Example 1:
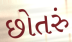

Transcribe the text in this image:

છોતરું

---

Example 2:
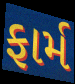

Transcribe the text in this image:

ફાર્મ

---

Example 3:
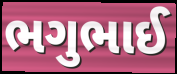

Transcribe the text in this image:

ભગુભાઈ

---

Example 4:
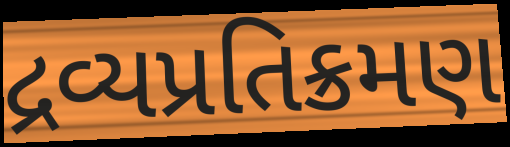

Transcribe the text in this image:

દ્રવ્યપ્રતિક્રમણ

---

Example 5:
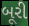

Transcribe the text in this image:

બૂરી